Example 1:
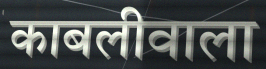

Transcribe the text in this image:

काबलीवाला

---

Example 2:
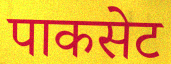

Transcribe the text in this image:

पाकसेट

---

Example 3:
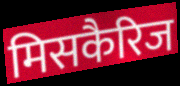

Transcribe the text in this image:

मिसकैरिज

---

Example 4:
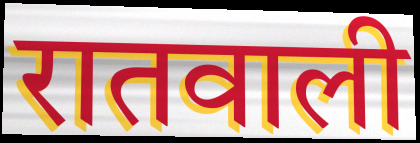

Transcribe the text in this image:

रातवाली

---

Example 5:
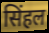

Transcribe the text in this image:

सिंहल